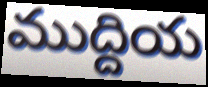
ముద్దియ